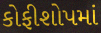
કોફીશોપમાં